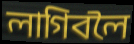
লাগিবলৈ